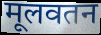
मूलवतन